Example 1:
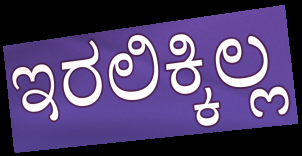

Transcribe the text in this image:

ಇರಲಿಕ್ಕಿಲ್ಲ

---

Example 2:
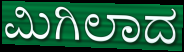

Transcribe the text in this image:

ಮಿಗಿಲಾದ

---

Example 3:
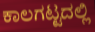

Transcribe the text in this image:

ಕಾಲಗಟ್ಟದಲ್ಲಿ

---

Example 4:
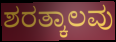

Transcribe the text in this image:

ಶರತ್ಕಾಲವು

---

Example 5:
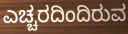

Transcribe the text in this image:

ಎಚ್ಚರದಿಂದಿರುವ